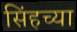
सिंहच्या